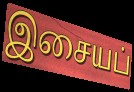
இசையப்